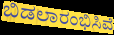
ಬಿಡಲಾರಂಭಿಸಿವೆ